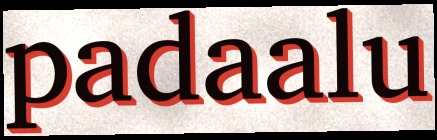
padaalu